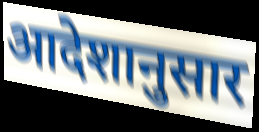
आदेशानुसार